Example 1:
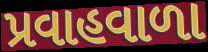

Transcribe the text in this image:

પ્રવાહવાળા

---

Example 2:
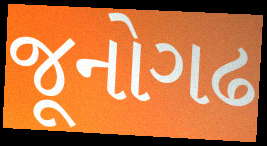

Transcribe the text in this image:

જૂનોગઢ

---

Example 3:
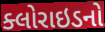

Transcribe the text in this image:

ક્લોરાઇડનો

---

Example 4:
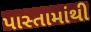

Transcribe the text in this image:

પાસ્તામાંથી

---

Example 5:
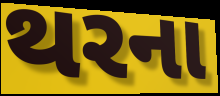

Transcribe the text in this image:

થરના